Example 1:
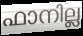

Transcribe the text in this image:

ഫാനില്ല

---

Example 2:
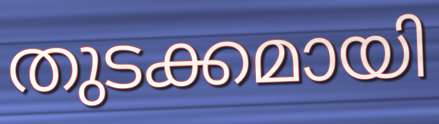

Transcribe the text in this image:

തുടക്കമായി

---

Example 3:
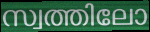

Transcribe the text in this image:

സ്വത്തിലോ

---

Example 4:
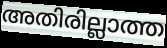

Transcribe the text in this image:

അതിരില്ലാത്ത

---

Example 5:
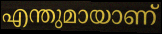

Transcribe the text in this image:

എന്തുമായാണ്